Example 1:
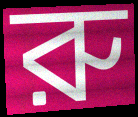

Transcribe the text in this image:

ৰু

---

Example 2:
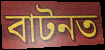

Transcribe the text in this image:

বাটনত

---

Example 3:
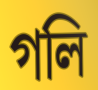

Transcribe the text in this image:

গলি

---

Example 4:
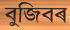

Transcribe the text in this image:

বুজিবৰ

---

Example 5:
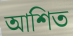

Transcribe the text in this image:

আশিত